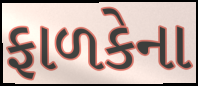
ફાળકેના